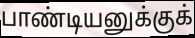
பாண்டியனுக்குக்